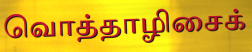
வொத்தாழிசைக்